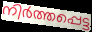
നിർത്തപ്പെട്ട